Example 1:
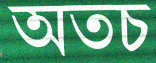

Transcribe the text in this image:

অতচ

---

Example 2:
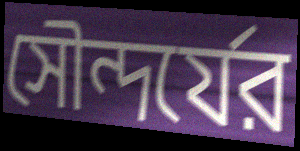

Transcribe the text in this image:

সৌন্দর্যের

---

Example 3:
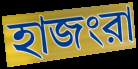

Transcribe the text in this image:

হাজংরা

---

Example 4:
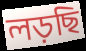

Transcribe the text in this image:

লড়ছি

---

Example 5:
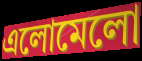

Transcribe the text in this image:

এলোমেলো